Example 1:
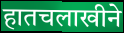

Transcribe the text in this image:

हातचलाखीने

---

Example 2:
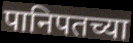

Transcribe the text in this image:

पानिपतच्या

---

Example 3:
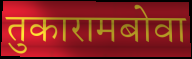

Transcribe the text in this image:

तुकारामबोवा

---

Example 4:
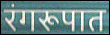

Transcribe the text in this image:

रंगरूपात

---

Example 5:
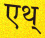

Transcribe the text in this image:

एथ्